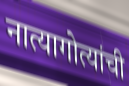
नात्यागोत्यांची